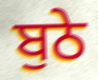
ਬੁਠੇ